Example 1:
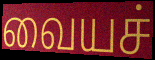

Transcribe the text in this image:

வையச்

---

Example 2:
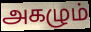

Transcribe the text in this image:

அகழும்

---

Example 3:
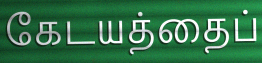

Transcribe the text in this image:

கேடயத்தைப்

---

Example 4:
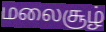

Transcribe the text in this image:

மலைசூழ்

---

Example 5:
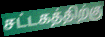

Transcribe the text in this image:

சட்டகத்திற்கு